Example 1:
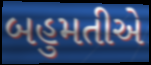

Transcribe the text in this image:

બહુમતીએ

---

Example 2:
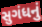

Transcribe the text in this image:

સુગંધનું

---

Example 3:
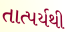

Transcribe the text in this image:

તાત્પર્યથી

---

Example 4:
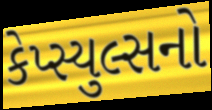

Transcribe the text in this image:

કેપ્સ્યુલ્સનો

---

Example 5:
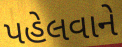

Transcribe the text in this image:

પહેલવાને